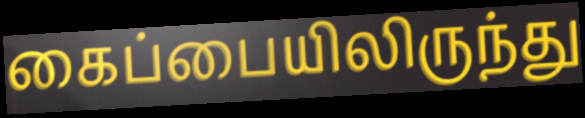
கைப்பையிலிருந்து